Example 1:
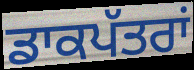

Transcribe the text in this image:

ਡਾਕਪੱਤਰਾਂ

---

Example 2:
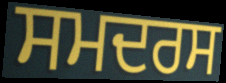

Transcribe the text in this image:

ਸਮਦਰਸ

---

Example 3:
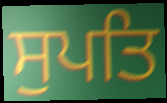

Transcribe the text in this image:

ਸੁਪਤਿ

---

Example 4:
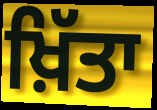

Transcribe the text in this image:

ਖ਼ਿੱਤਾ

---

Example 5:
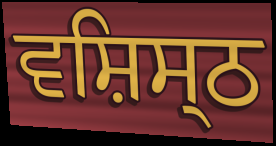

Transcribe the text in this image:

ਵਸ਼ਿਸ੍ਠ